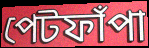
পেটফাঁপা